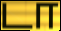
டா